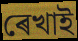
ৰেখাই